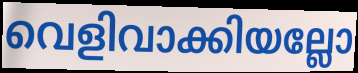
വെളിവാക്കിയല്ലോ